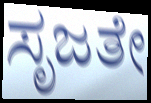
ಸೃಜತೇ